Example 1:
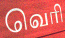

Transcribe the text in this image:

வெரி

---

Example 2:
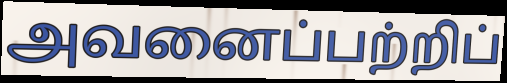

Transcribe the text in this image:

அவனைப்பற்றிப்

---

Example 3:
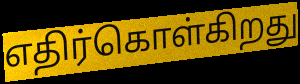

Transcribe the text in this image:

எதிர்கொள்கிறது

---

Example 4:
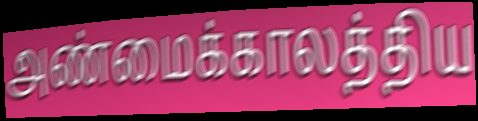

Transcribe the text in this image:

அண்மைக்காலத்திய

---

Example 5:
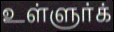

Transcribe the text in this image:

உள்ளுர்க்